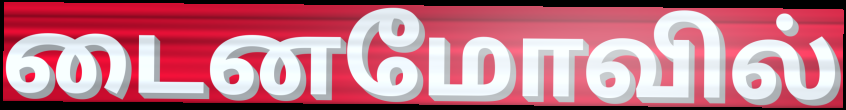
டைனமோவில்